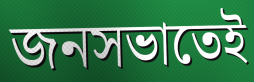
জনসভাতেই